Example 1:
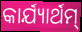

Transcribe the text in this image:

କାର୍ଯ୍ୟାର୍ଥମ୍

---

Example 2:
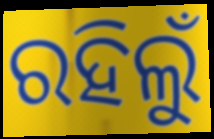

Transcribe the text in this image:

ରହିଲୁଁ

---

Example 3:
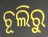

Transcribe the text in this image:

ଚୂଲିରୁ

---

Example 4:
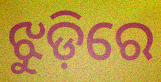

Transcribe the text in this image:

ଝୁଡ଼ିରେ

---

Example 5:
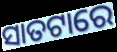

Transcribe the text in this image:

ସାତଟାରେ